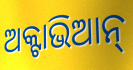
ଅକ୍ଟାଭିଆନ୍